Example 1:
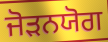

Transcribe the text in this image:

ਜੋੜਨਯੋਗ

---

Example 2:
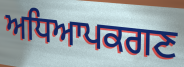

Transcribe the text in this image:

ਅਧਿਆਪਕਗਣ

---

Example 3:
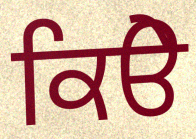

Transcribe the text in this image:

ਕਿੳੇ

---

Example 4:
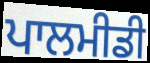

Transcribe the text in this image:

ਪਾਲਮੀਡੀ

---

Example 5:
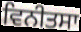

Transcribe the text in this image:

ਵਿਨੀਤਸਾ